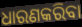
ଧାରଣକରିବା